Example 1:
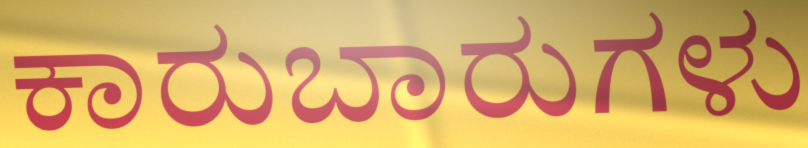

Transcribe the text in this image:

ಕಾರುಬಾರುಗಳು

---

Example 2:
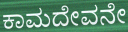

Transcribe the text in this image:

ಕಾಮದೇವನೇ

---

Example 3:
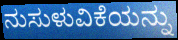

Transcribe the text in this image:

ನುಸುಳುವಿಕೆಯನ್ನು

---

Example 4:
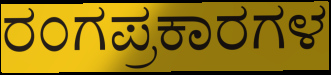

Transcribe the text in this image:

ರಂಗಪ್ರಕಾರಗಳ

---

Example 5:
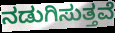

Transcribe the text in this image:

ನಡುಗಿಸುತ್ತವೆ